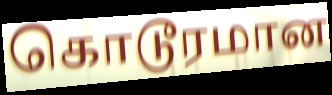
கொடூரமான